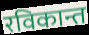
रविकान्त